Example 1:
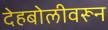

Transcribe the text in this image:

देहबोलीवरून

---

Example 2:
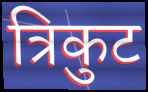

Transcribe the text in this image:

त्रिकुट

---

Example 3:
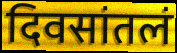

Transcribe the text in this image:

दिवसांतलं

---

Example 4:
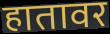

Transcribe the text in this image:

हातावर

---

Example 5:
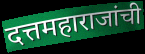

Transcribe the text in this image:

दत्तमहाराजांची